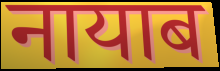
नायाब